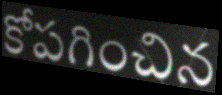
కోపగించిన